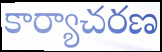
కార్యాచరణ